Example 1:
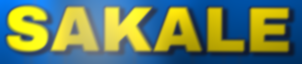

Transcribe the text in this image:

SAKALE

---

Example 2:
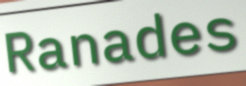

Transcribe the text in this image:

Ranades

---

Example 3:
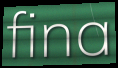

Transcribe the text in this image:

fina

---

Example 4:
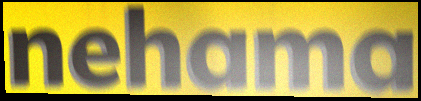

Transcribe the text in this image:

nehama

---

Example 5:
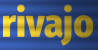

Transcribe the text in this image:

rivajo